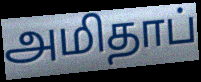
அமிதாப்